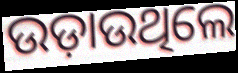
ଉଡ଼ାଉଥିଲେ